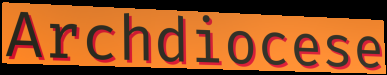
Archdiocese